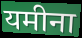
यमीना